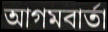
আগমবার্তা